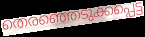
തെരഞ്ഞെടുക്കപ്പെട്ട